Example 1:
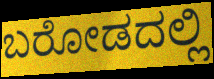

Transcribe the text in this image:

ಬರೋಡದಲ್ಲಿ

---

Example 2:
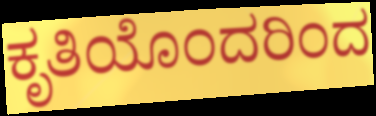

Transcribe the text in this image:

ಕೃತಿಯೊಂದರಿಂದ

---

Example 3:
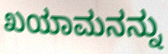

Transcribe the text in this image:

ಖಯಾಮನನ್ನು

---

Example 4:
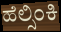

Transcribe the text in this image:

ಹೆಲ್ಸಿಂಕಿ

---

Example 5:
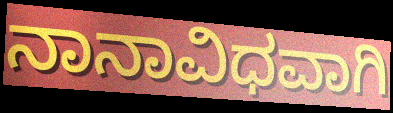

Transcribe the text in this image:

ನಾನಾವಿಧವಾಗಿ